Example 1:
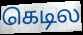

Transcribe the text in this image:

கெடில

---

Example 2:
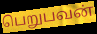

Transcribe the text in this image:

பெறுபவன்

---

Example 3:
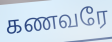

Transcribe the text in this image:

கணவரே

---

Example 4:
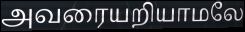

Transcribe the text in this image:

அவரையறியாமலே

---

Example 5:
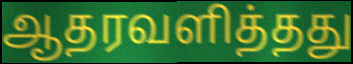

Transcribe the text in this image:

ஆதரவளித்தது